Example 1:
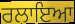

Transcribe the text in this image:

ਰਲਾਇਆ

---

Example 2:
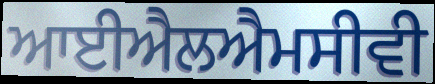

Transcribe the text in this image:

ਆਈਐਲਐਮਸੀਵੀ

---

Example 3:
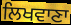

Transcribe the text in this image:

ਲਿਖਵਾਣਾ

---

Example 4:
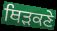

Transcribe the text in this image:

ਥਿੜਕਣੇ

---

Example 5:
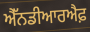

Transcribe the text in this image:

ਐੱਨਡੀਆਰਐਫ਼